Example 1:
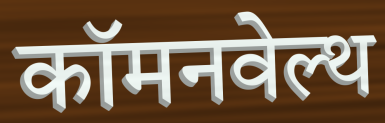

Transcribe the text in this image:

कॉमनवेल्थ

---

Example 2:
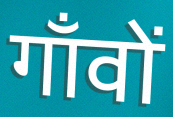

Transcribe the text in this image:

गाँवों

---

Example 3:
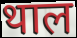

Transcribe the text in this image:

थाल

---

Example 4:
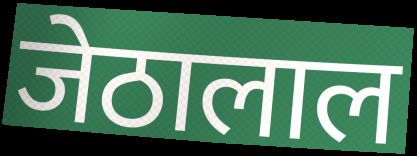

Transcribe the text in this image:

जेठालाल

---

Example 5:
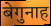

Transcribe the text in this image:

बेगुनाह